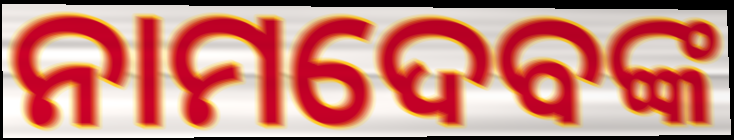
ନାମଦେବଙ୍କ